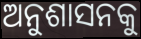
ଅନୁଶାସନକୁ